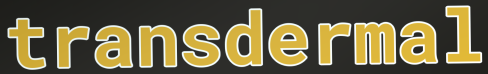
transdermal